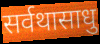
सर्वथासाधु